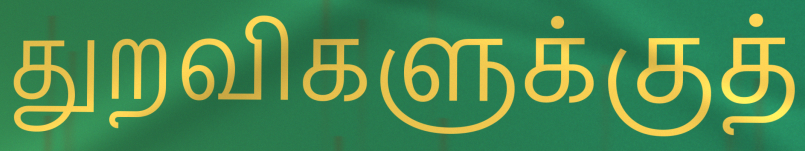
துறவிகளுக்குத்